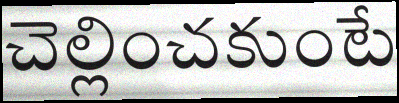
చెల్లించకుంటే